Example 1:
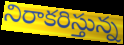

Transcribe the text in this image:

నిరాకరిస్తున్న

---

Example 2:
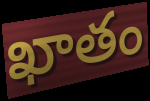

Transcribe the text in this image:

ఖాతం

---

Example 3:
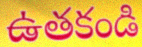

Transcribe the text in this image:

ఉతకండి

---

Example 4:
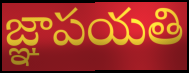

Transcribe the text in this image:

జ్ఞాపయతి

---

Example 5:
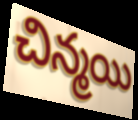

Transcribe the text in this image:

చిన్మయి